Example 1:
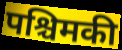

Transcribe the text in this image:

पश्चिमकी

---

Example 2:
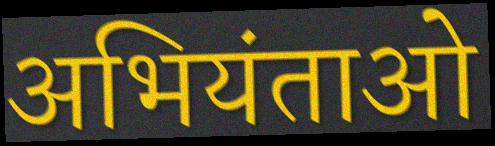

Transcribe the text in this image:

अभियंताओ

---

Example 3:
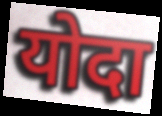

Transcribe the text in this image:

योदा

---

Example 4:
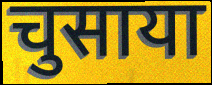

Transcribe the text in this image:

चुसाया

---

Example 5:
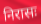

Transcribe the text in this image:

निरासः